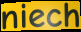
niech